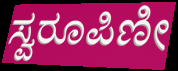
ಸ್ವರೂಪಿಣೀ